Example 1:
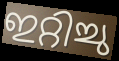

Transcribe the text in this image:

ഇറ്റിച്ചു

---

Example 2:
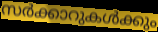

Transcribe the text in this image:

സർക്കാറുകൾക്കും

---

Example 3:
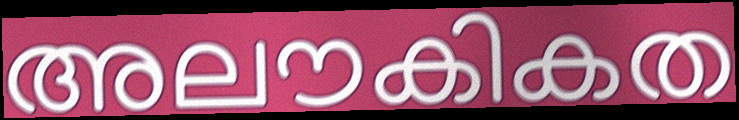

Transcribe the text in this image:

അലൗകികത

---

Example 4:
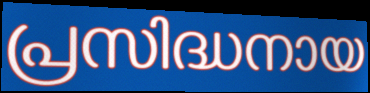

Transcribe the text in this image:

പ്രസിദ്ധനായ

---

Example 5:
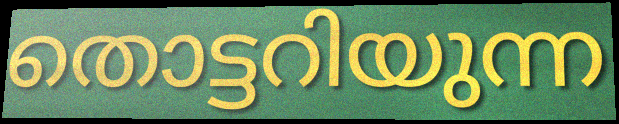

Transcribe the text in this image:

തൊട്ടറിയുന്ന